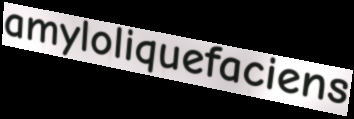
amyloliquefaciens